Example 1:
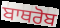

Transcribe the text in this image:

ਬਾਥਰੋਬ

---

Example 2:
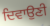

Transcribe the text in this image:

ਦਿਵਾਉਣੀ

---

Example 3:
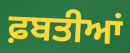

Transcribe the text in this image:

ਫ਼ਬਤੀਆਂ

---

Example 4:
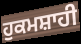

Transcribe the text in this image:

ਹੁਕਮਸ਼ਾਹੀ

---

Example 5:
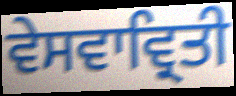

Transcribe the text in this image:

ਵੇਸਵਾਵ੍ਰਿਤੀ